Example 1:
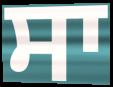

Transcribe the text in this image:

ਸਾ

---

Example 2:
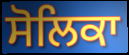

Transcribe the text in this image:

ਸੋਲਿਕਾ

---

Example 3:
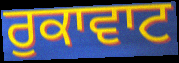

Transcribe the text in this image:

ਰੁਕਾਵਾਟ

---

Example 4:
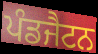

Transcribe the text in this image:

ਪੰਡਜੈਟਨ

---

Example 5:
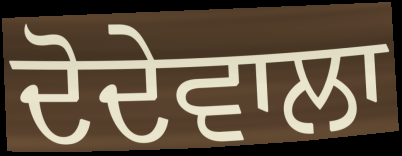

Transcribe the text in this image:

ਦੋਦੇਵਾਲਾ